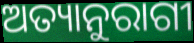
ଅତ୍ୟାନୁରାଗୀ